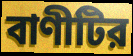
বাণীটির